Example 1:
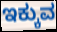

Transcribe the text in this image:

ಇಕ್ಕುವ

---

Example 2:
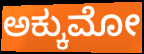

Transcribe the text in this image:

ಅಕ್ಕುಮೋ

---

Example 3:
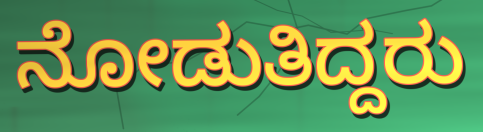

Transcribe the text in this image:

ನೋಡುತಿದ್ದರು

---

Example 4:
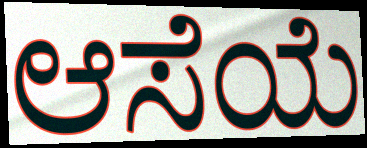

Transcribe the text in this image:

ಆಸೆಯೆ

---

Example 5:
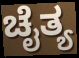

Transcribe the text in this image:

ಚೈತ್ಯ